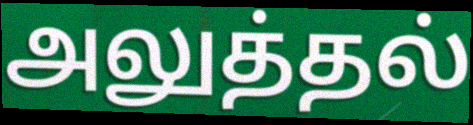
அலுத்தல்